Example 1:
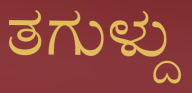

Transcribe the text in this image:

ತಗುಳ್ದು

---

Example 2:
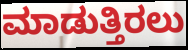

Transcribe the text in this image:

ಮಾಡುತ್ತಿರಲು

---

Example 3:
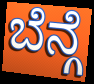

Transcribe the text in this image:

ಬೆನ್ಗೆ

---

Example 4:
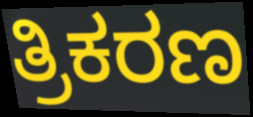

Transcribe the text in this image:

ತ್ರಿಕರಣ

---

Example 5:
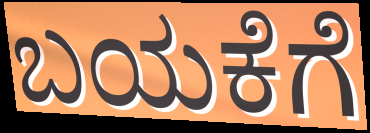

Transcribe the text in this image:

ಬಯಕೆಗೆ